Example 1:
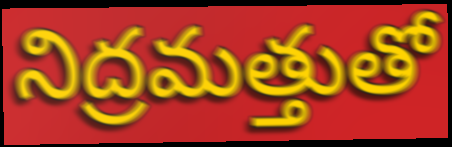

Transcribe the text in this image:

నిద్రమత్తుతో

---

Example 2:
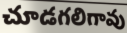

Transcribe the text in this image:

చూడగలిగావు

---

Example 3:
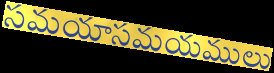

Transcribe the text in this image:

సమయాసమయములు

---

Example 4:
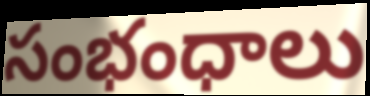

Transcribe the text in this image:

సంభంధాలు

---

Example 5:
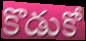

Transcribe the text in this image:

కొడుకో